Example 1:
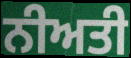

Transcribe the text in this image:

ਨੀਅਤੀ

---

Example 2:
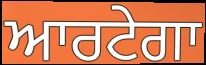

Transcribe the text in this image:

ਆਰਟੇਗਾ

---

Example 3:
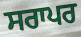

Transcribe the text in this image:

ਸਰਾਪਰ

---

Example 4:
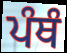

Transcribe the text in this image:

ਪੰਥੰ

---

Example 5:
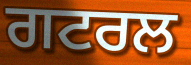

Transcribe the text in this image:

ਗਟਰਲ